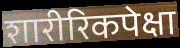
शारीरिकपेक्षा